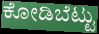
ಕೋಡಿಬೆಟ್ಟು